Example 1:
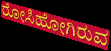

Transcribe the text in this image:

ರೋಸಿಹೋಗಿರುವ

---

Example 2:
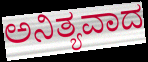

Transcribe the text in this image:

ಅನಿತ್ಯವಾದ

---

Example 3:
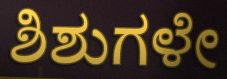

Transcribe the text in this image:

ಶಿಶುಗಳೇ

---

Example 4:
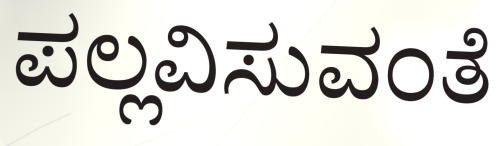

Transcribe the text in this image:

ಪಲ್ಲವಿಸುವಂತೆ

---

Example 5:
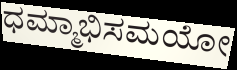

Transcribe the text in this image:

ಧಮ್ಮಾಭಿಸಮಯೋ